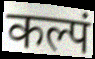
कल्पं